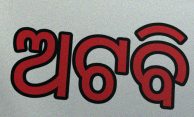
ଅଟବି